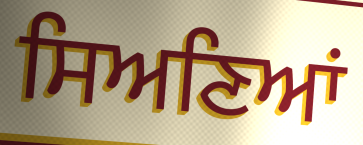
ਸਿਅਣਿਆਂ